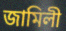
জামিলী